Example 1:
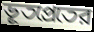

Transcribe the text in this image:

ভূতপ্রেতের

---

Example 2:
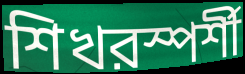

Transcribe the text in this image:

শিখরস্পর্শী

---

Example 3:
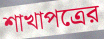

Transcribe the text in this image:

শাখাপত্রের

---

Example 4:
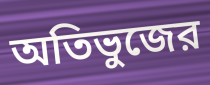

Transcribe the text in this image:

অতিভুজের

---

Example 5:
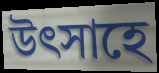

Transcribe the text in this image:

উত্‍সাহে